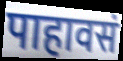
पाहावसं